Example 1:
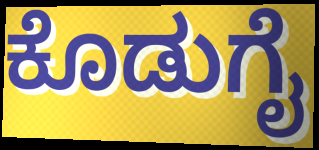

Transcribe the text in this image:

ಕೊಡುಗೈ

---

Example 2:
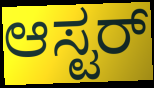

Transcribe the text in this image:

ಆಸ್ಟರ್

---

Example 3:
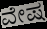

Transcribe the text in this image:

ವೇಷ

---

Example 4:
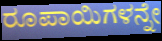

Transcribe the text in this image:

ರೂಪಾಯಿಗಳನ್ನೇ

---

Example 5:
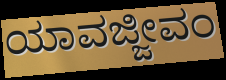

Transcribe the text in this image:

ಯಾವಜ್ಜೀವಂ